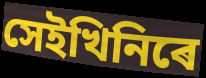
সেইখিনিৰে